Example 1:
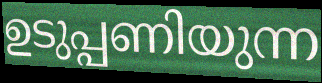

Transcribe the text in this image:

ഉടുപ്പണിയുന്ന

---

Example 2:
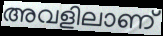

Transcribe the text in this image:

അവളിലാണ്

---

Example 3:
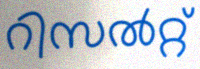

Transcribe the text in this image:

റിസൽറ്റ്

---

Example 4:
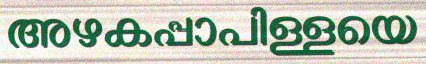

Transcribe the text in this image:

അഴകപ്പാപിള്ളയെ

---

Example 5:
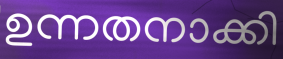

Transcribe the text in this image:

ഉന്നതനാക്കി